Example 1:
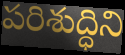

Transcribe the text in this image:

పరిశుద్ధిని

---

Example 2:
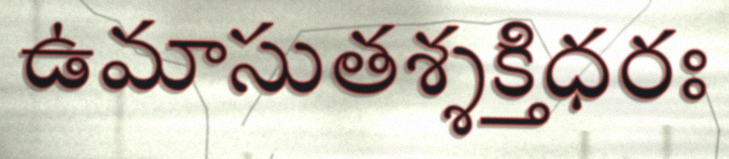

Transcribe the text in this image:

ఉమాసుతశ్శక్తిధరః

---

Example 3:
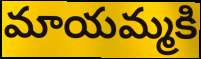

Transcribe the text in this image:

మాయమ్మకి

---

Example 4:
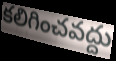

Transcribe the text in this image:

కలిగించవద్దు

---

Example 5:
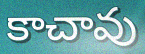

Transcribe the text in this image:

కాచావు